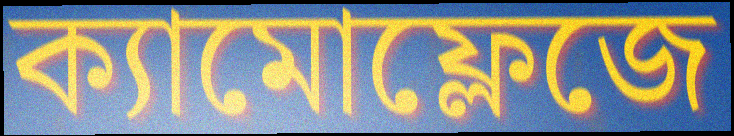
ক্যামোফ্লেজে